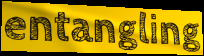
entangling